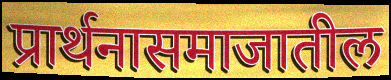
प्रार्थनासमाजातील